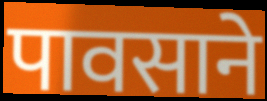
पावसाने